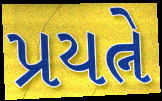
પ્રયત્ને